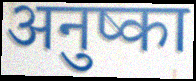
अनुष्का